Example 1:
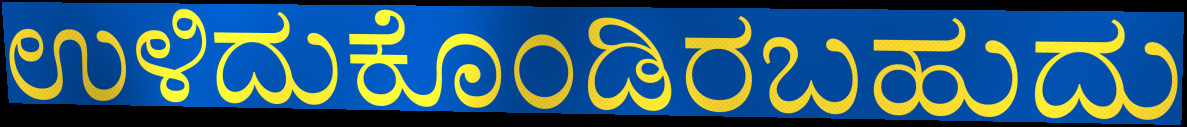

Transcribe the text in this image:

ಉಳಿದುಕೊಂಡಿರಬಹುದು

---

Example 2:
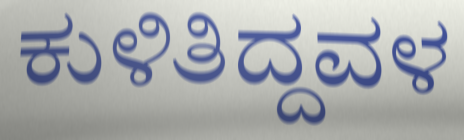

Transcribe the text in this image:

ಕುಳಿತಿದ್ದವಳ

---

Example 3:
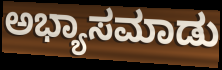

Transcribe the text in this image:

ಅಭ್ಯಾಸಮಾಡು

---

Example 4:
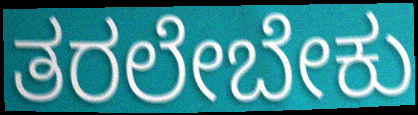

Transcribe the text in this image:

ತರಲೇಬೇಕು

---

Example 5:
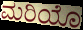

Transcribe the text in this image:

ಮರಿಯೊ